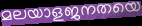
മലയാളജനതയെ